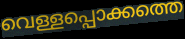
വെള്ളപ്പൊക്കത്തെ